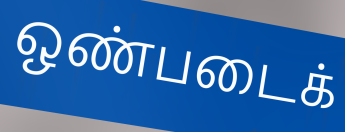
ஒண்படைக்